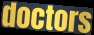
doctors